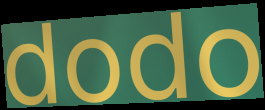
dodo